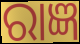
ରାଜ୍ଞ